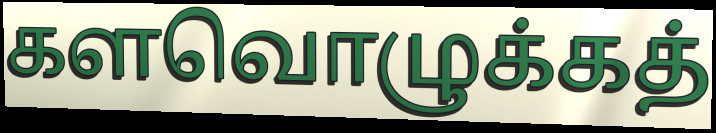
களவொழுக்கத்